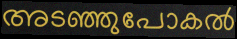
അടഞ്ഞുപോകൽ